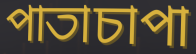
পাতাচাপা